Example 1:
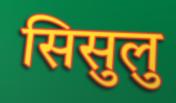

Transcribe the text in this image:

सिसुलु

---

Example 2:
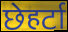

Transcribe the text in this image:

छेहर्टा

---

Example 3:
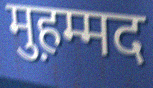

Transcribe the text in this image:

मुह़म्मद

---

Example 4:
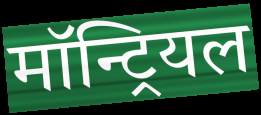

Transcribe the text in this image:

मॉन्ट्रियल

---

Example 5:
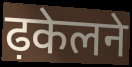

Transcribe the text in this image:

ढ़केलने